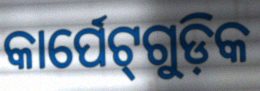
କାର୍ପେଟ୍‌ଗୁଡ଼ିକ